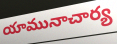
యామునాచార్య